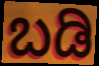
ಬಡಿ